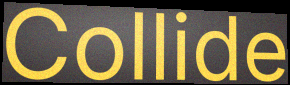
Collide